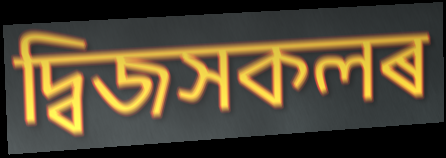
দ্বিজসকলৰ